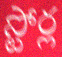
స్టోర్ల